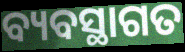
ବ୍ୟବସ୍ଥାଗତ